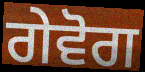
ਗੇਵੋਗ